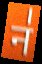
न॑